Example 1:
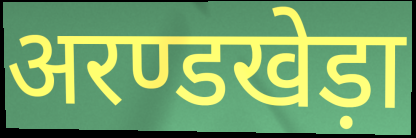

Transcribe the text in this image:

अरण्डखेड़ा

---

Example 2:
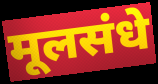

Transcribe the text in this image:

मूलसंधे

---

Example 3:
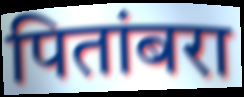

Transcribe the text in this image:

पितांबरा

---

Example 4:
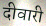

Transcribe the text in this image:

दीवारी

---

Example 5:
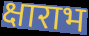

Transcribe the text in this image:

क्षाराभ